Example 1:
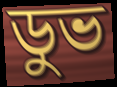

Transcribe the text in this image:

ডুভ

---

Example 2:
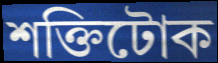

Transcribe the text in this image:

শক্তিটোক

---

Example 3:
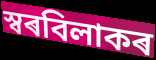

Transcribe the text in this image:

স্বৰবিলাকৰ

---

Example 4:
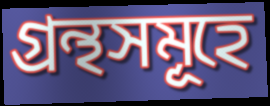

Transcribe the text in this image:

গ্ৰন্থসমূহে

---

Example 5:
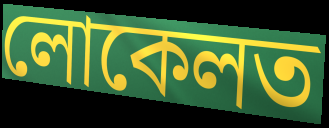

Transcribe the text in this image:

লোকেলত